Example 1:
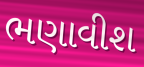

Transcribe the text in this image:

ભણાવીશ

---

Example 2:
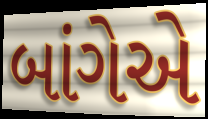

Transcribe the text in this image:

બાંગેએ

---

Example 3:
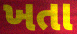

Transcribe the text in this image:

ખતા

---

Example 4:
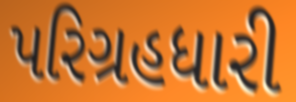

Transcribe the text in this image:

પરિગ્રહધારી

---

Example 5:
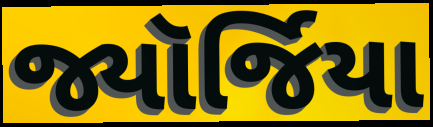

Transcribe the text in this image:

જ્યૉર્જિયા